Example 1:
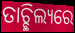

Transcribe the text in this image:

ତାଚ୍ଛିଲ୍ୟରେ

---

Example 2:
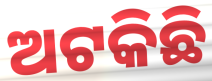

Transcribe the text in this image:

ଅଟକିଛି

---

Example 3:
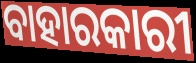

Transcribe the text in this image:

ବାହାରକାରୀ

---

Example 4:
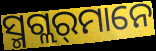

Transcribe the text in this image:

ସ୍ମଗ୍ଲର୍‌ମାନେ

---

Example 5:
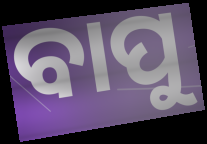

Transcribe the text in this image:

ବାପୁ